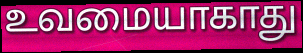
உவமையாகாது